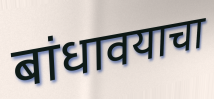
बांधावयाचा